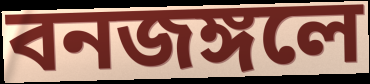
বনজঙ্গলে